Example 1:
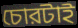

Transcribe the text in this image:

চোরটাই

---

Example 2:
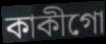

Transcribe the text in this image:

কাকীগো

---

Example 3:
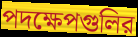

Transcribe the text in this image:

পদক্ষেপগুলির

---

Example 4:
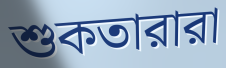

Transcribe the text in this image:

শুকতারারা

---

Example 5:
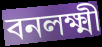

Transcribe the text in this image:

বনলক্ষ্মী